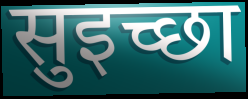
सुइच्छा